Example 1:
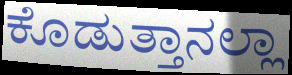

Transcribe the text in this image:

ಕೊಡುತ್ತಾನಲ್ಲಾ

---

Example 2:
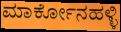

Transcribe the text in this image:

ಮಾರ್ಕೋನಹಳ್ಳಿ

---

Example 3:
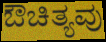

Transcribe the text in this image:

ಔಚಿತ್ಯವು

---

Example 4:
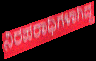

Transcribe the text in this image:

ನಿರಪರಾಧಿಗಳಾಗಿದ್ದ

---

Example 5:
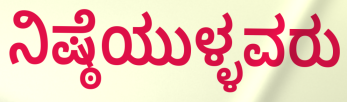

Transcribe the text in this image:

ನಿಷ್ಠೆಯುಳ್ಳವರು